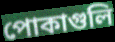
পোকাগুলি